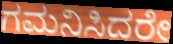
ಗಮನಿಸಿದರೇ